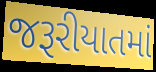
જરૂરીયાતમાં